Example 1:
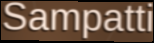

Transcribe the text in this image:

Sampatti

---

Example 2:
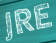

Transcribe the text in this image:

JRE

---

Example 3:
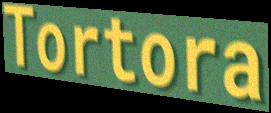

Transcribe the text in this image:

Tortora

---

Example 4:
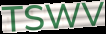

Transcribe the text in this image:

TSWV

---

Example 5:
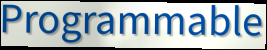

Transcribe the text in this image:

Programmable